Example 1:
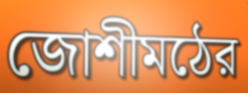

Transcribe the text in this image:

জোশীমঠের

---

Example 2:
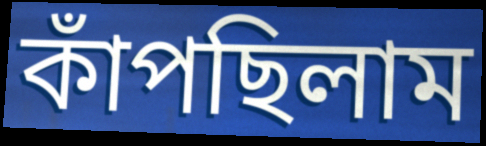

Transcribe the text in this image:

কাঁপছিলাম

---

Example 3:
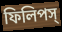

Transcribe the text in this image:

ফিলিপস্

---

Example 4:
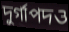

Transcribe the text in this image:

দুর্গাপদও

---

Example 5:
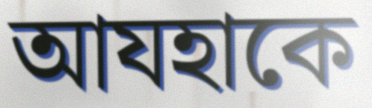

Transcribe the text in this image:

আযহাকে